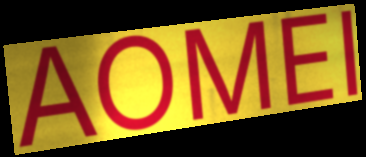
AOMEI